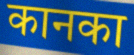
कानका